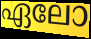
ഏലോ